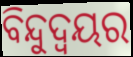
ବିନ୍ଦୁଦ୍ବୟର